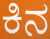
ಕಿನ